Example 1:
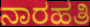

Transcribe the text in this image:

ನಾರಹತಿ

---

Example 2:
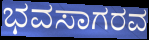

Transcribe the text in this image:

ಭವಸಾಗರವ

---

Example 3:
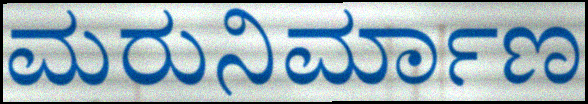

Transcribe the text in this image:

ಮರುನಿರ್ಮಾಣ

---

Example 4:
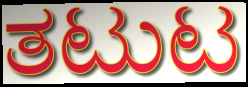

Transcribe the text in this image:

ತಟುಟ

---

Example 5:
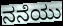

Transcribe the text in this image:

ನನೆಯು